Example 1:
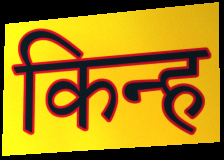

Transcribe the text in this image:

किन्ह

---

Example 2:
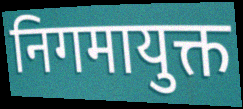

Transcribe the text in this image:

निगमायुक्त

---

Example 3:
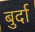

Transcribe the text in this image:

बुर्दा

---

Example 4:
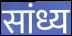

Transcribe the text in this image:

सांध्य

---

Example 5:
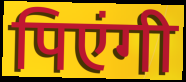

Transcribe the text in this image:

पिएंगी